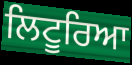
ਲਿਟੂਰਿਆ